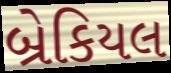
બ્રેકિયલ